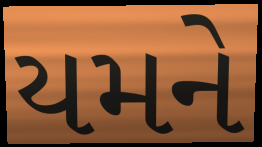
યમને